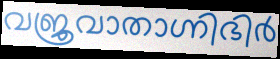
വജ്രവാതാഗ്നിഭിർ